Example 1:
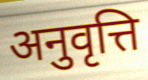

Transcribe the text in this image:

अनुवृत्ति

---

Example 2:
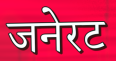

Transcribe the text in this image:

जनेरट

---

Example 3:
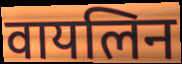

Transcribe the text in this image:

वायलिन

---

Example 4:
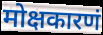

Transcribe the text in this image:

मोक्षकारणं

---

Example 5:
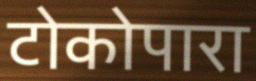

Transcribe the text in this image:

टोकोपारा